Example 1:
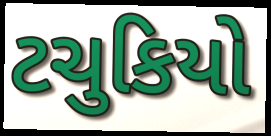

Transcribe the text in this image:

ટચુકિયો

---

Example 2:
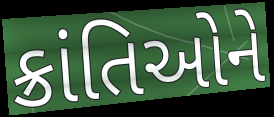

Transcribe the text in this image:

ક્રાંતિઓને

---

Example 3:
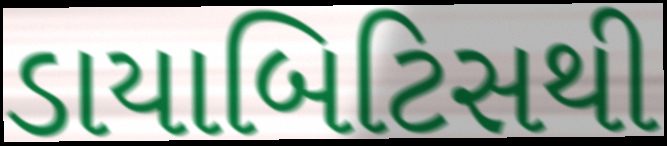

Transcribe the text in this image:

ડાયાબિટિસથી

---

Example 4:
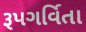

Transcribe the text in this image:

રૂપગર્વિતા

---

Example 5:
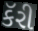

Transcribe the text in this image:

કૅરી